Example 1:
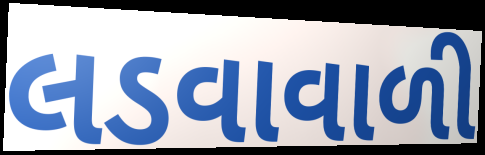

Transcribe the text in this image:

લડવાવાળી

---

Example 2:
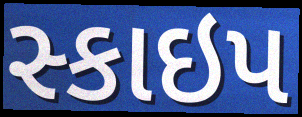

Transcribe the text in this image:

સ્કાઇપ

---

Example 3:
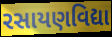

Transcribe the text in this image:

રસાયણવિદ્યા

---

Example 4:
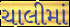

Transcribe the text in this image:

ચાલીમાં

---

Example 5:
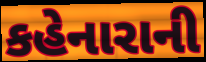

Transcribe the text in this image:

કહેનારાની